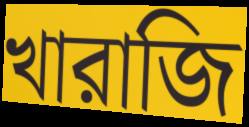
খারাজি